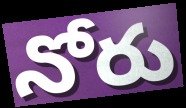
నోరు